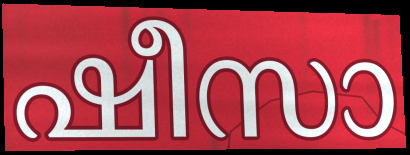
ഷീസാ